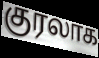
குரலாக